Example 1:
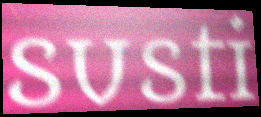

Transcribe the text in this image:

susti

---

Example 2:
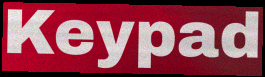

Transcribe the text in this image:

Keypad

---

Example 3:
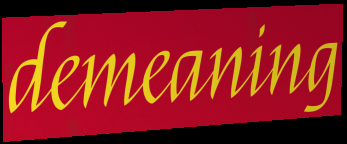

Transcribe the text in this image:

demeaning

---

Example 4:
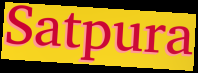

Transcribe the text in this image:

Satpura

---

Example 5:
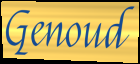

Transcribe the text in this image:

Genoud